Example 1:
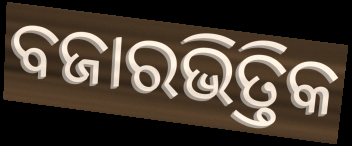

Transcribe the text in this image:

ବଜାରଭିତ୍ତିକ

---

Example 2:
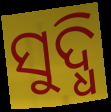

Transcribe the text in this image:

ସୁଦ୍ଧି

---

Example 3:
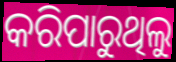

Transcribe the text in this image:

କରିପାରୁଥିଲୁ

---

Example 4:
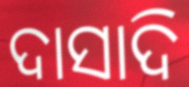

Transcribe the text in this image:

ଦାସାଦି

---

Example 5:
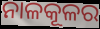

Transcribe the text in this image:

ନାଳକୂଳର